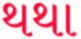
થથા